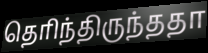
தெரிந்திருந்ததா